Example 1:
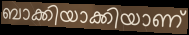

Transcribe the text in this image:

ബാക്കിയാക്കിയാണ്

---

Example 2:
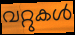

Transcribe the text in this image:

വറ്റുകൾ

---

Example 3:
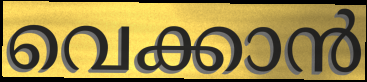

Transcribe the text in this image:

വെക്കാൻ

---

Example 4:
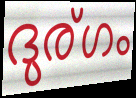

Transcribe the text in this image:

ദുര്ഗം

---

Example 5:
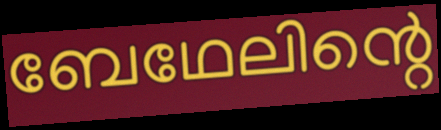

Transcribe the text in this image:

ബേഥേലിന്റെ